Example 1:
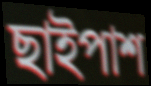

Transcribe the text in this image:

ছাইপাশ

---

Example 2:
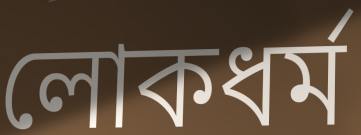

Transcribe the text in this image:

লোকধর্ম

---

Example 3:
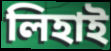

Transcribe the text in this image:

লিহাই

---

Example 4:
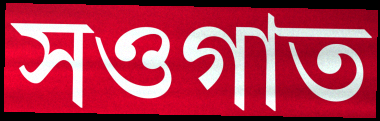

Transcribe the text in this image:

সওগাত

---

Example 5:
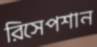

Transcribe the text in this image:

রিসেপশান